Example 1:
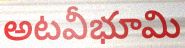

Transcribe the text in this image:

అటవీభూమి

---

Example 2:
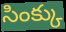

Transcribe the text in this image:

సింక్కు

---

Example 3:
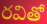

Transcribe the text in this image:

రవితో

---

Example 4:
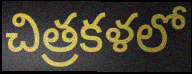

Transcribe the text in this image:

చిత్రకళలో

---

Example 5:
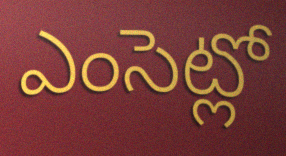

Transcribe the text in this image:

ఎంసెట్లో